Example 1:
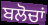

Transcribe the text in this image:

ਬਲੋਚਾਂ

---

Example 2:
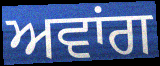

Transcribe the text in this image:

ਅਵਾਂਗ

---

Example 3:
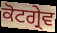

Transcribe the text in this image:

ਕੋਟਗ੍ਰੇਵ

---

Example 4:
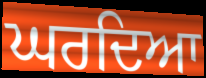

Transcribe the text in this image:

ਘਰਦਿਆ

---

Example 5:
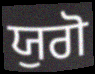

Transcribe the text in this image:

ਯੁਗੋ